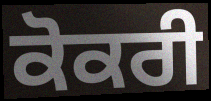
ਕੋਕਰੀ